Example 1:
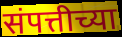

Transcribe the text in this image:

संपत्तीच्या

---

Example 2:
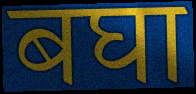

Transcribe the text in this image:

बघा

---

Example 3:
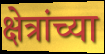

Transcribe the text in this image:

क्षेत्रांच्या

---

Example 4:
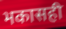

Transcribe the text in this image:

भकासही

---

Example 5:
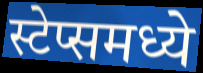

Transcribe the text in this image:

स्टेप्समध्ये